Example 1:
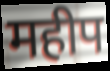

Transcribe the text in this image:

महीप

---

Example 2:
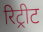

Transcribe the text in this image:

रिट्रीट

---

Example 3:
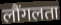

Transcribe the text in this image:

लौंगलता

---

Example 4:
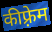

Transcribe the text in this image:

कीफ़्रेम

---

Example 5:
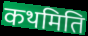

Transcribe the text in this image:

कथमिति